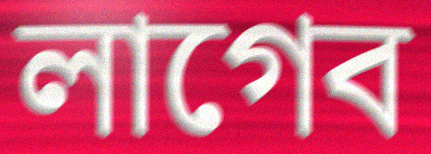
লাগেব